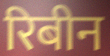
रिबीन